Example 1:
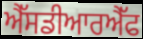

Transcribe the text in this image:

ਐੱਸਡੀਆਰਐੱਫ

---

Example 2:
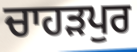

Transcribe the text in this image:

ਚਾਹਡ਼ਪੁਰ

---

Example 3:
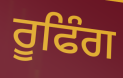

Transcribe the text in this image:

ਰੂਫਿੰਗ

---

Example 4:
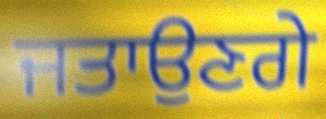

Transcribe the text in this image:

ਜਤਾਉਣਗੇ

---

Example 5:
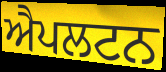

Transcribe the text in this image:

ਐਪਲਟਨ